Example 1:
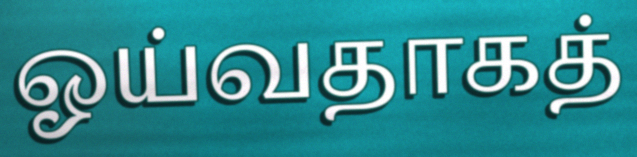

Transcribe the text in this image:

ஓய்வதாகத்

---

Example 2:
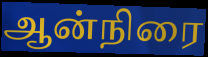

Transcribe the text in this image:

ஆன்நிரை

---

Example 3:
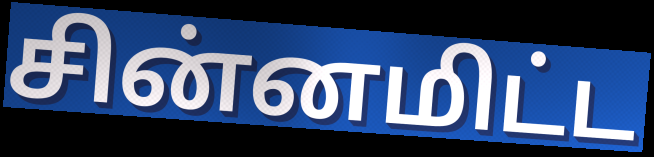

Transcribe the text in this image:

சின்னமிட்ட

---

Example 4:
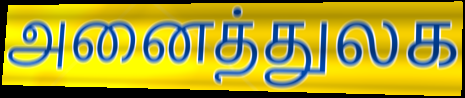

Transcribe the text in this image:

அனைத்துலக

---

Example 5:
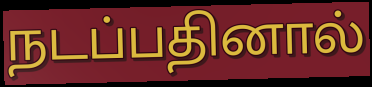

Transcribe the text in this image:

நடப்பதினால்